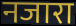
नजारा